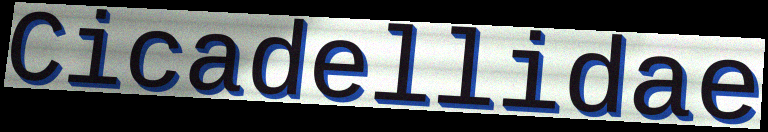
Cicadellidae